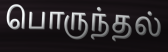
பொருந்தல்